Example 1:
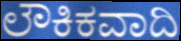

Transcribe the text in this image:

ಲೌಕಿಕವಾದಿ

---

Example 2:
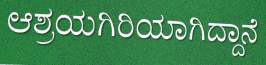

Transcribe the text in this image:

ಆಶ್ರಯಗಿರಿಯಾಗಿದ್ದಾನೆ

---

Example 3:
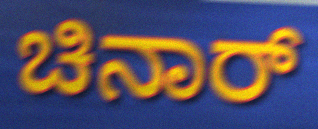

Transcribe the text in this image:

ಚಿನಾರ್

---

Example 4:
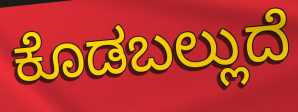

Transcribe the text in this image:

ಕೊಡಬಲ್ಲುದೆ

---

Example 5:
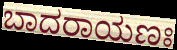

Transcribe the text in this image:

ಬಾದರಾಯಣಃ